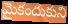
మైకందుకుని